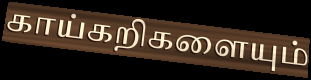
காய்கறிகளையும்